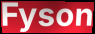
Fyson